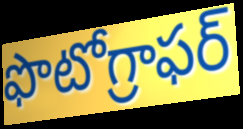
ఫొటోగ్రాఫర్